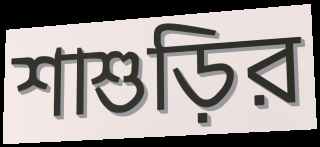
শাশুড়ির